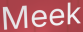
Meek